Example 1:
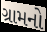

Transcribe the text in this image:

ગ્રામનો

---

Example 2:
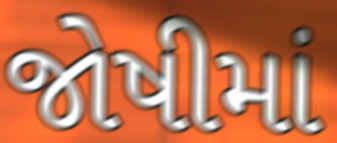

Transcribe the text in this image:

જોષીમાં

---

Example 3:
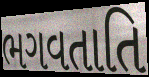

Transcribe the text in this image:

ભગવતાતિ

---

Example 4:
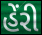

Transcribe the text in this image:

હેંરી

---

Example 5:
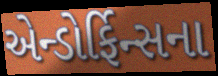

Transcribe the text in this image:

એન્ડોર્ફિન્સના